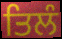
ਤਿਲੰ